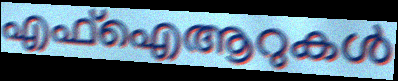
എഫ്ഐആറുകൾ